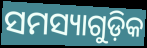
ସମସ୍ୟାଗୁଡ଼ିକ